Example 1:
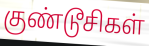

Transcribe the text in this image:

குண்டூசிகள்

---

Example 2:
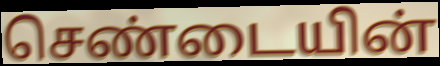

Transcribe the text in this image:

செண்டையின்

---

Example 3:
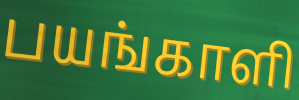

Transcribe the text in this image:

பயங்காளி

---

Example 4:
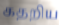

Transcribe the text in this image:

கதறிய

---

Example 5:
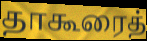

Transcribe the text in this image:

தாகூரைத்